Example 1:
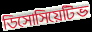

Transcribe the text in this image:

ডিসোসিয়েটিভ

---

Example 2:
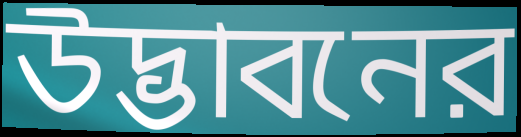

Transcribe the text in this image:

উদ্ভাবনের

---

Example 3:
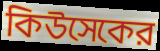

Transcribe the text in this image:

কিউসেকের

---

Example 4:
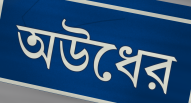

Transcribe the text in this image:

অউধের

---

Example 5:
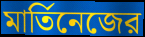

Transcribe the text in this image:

মার্তিনেজের